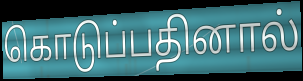
கொடுப்பதினால்